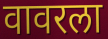
वावरला